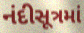
નંદીસૂત્રમાં